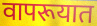
वापरूयात